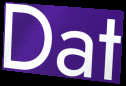
Dat